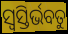
ସ୍ୱସ୍ତିର୍ଭବତୁ